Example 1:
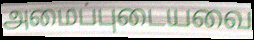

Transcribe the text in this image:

அமைப்புடையவை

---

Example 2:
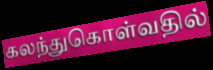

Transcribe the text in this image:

கலந்துகொள்வதில்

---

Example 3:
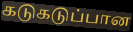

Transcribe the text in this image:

கடுகடுப்பான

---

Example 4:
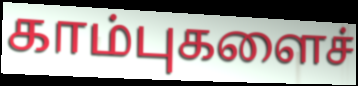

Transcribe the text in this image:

காம்புகளைச்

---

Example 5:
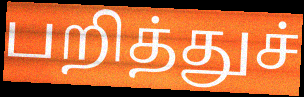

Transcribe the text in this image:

பறித்துச்